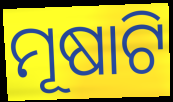
ମୂଷାଟି